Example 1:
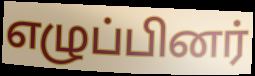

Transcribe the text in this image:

எழுப்பினர்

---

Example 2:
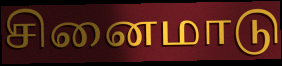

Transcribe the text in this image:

சினைமாடு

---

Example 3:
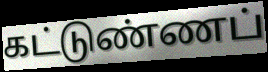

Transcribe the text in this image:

கட்டுண்ணப்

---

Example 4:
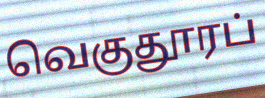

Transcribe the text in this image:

வெகுதூரப்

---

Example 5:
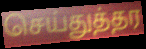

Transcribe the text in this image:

செய்துத்தர